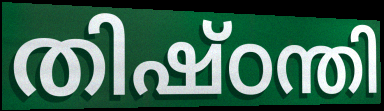
തിഷ്ഠന്തി